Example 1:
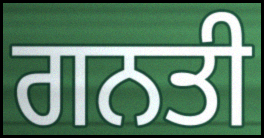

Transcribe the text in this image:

ਗਨਤੀ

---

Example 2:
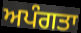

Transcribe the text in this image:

ਅਪੰਗਤਾ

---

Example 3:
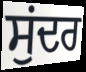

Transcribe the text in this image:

ਸੁਂਦਰ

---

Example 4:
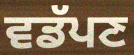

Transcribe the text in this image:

ਵਡੱਪਣ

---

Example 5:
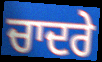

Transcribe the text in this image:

ਚਾਦਰੇ